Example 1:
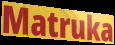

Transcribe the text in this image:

Matruka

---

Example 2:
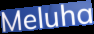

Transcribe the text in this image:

Meluha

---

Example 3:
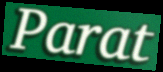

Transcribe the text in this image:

Parat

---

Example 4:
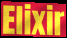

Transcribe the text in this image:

Elixir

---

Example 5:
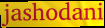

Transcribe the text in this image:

jashodani